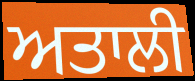
ਅਤਾਲੀ